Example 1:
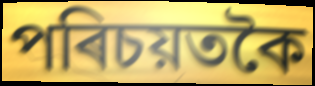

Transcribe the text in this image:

পৰিচয়তকৈ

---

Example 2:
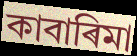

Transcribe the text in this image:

কাবাৰিমা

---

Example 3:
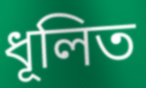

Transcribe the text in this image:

ধূলিত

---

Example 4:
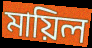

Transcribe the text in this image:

মায়িল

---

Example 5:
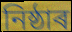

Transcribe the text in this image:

নিষ্ঠাৰ